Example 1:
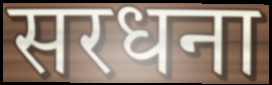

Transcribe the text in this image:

सरधना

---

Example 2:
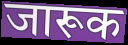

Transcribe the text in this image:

जारूक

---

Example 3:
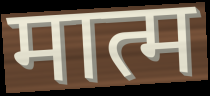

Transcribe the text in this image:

मात्म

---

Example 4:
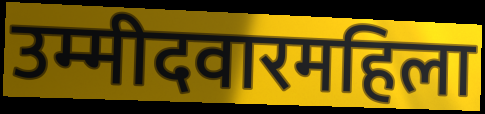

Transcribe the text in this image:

उम्मीदवारमहिला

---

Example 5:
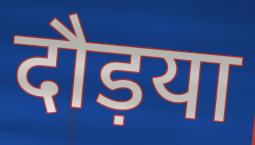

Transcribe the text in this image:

दौड़या